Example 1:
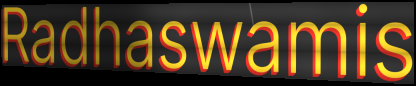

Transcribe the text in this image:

Radhaswamis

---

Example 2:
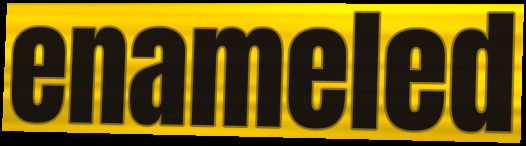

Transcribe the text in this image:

enameled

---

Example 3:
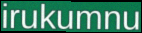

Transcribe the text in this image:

irukumnu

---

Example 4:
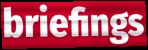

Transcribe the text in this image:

briefings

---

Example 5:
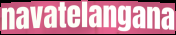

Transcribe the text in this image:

navatelangana